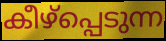
കീഴ്പ്പെടുന്ന